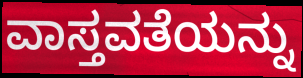
ವಾಸ್ತವತೆಯನ್ನು